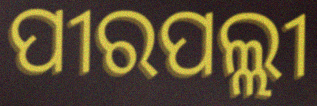
ପୀରପଲ୍ଲୀ